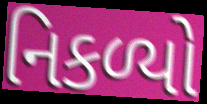
નિકળ્યો